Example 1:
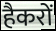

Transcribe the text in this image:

हैकरों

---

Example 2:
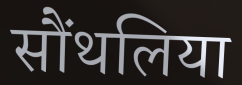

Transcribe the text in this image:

सौंथलिया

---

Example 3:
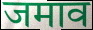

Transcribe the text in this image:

जमाव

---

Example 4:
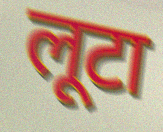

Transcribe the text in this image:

लूटा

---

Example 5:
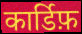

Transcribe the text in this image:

कार्डिफ़